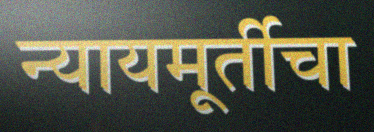
न्यायमूर्तीचा